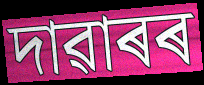
দাৱাৰৰ